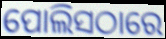
ପୋଲିସଠାରେ